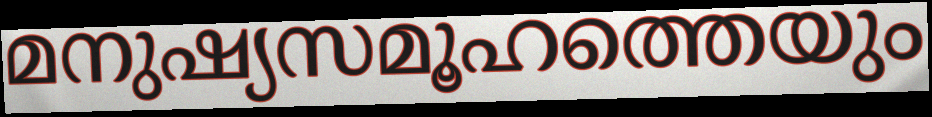
മനുഷ്യസമൂഹത്തെയും